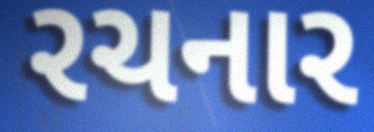
રચનાર